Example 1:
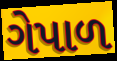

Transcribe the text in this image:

ગેપાળ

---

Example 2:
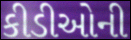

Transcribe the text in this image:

કીડીઓની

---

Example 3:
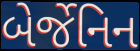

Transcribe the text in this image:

બેર્જેનિન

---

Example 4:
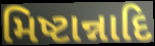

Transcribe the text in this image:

મિષ્ટાન્નાદિ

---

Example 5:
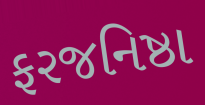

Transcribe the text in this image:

ફરજનિષ્ઠા